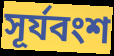
সূর্যবংশ